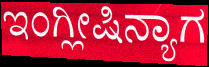
ಇಂಗ್ಲೀಷಿನ್ಯಾಗ